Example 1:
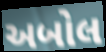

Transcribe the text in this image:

અબોલ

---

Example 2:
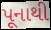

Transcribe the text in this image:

પૂનાથી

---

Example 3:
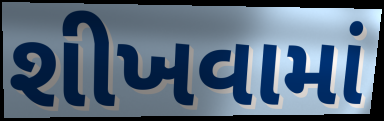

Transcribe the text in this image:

શીખવામાં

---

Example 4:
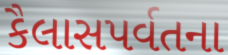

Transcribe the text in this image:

કૈલાસપર્વતના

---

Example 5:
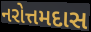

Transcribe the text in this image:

નરોત્તમદાસ